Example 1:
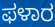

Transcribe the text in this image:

ಫಳಾರ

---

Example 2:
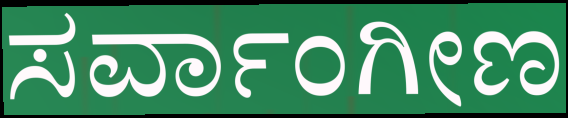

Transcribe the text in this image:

ಸರ್ವಾಂಗೀಣ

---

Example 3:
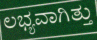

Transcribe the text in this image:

ಲಭ್ಯವಾಗಿತ್ತು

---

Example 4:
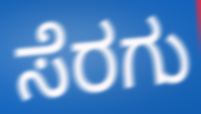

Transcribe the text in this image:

ಸೆರಗು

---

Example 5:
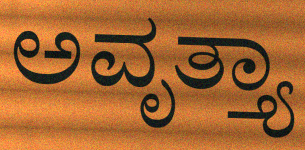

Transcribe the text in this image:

ಅವೃತ್ತ್ಯಾ